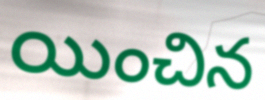
యించిన